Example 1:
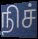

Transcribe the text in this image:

நிச்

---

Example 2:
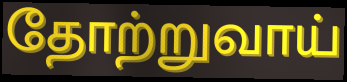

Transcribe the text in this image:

தோற்றுவாய்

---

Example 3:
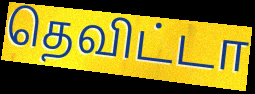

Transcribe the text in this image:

தெவிட்டா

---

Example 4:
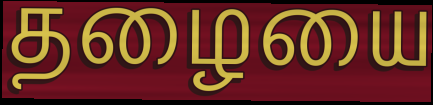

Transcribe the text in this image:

தழையை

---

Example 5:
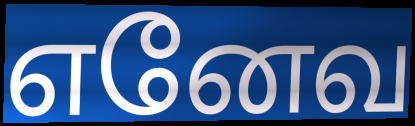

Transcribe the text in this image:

எனேவ